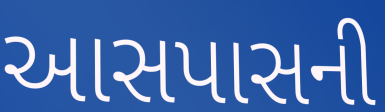
આસપાસની